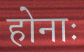
होनाः